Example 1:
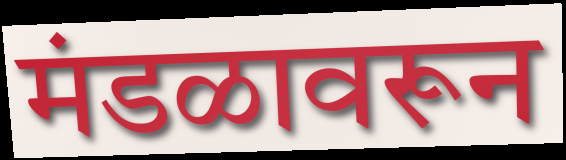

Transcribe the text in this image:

मंडळावरून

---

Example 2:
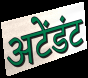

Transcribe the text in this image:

अटेंडंट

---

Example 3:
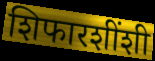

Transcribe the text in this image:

शिफारशींशी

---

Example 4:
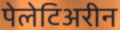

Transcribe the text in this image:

पेलेटिअरीन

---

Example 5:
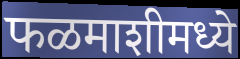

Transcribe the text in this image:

फळमाशीमध्ये